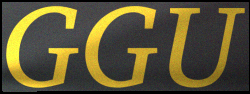
GGU